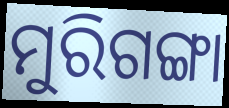
ମୁରିଗଙ୍ଗା